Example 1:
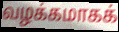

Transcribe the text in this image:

வழக்கமாகக்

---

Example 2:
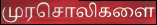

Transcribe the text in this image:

முரசொலிகளை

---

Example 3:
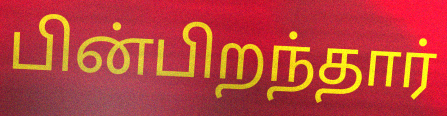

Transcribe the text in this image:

பின்பிறந்தார்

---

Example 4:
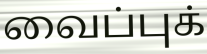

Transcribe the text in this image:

வைப்புக்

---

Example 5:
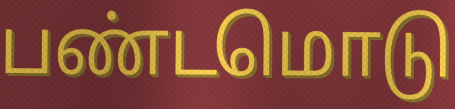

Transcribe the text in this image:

பண்டமொடு